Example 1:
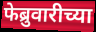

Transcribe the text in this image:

फेब्रुवारीच्या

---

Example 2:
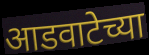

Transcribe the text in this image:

आडवाटेच्या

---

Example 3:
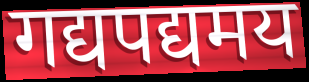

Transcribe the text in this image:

गद्यपद्यमय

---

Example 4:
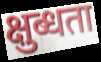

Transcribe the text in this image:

क्षुब्धता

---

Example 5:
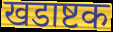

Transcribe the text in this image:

खडाष्टक